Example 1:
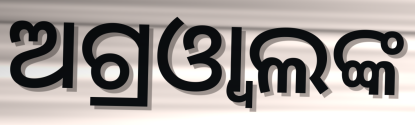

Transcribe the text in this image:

ଅଗ୍ରଓ୍ବାଲଙ୍କ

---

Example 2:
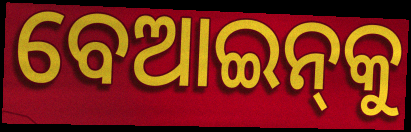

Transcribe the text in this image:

ବେଆଇନ୍‌କୁ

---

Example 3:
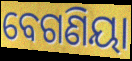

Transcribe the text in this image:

ବେଗଣିୟା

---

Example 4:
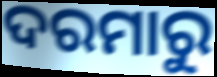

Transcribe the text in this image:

ଦରମାରୁ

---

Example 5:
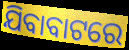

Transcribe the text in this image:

ଯିବାବାଟରେ